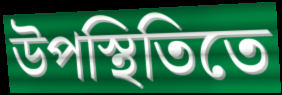
উপস্থিতিতে